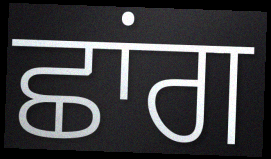
ਛਾਂਗ